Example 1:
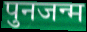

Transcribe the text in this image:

पुनजन्म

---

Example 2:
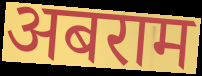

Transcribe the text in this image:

अबराम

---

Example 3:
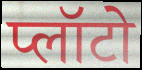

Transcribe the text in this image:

प्लॉटो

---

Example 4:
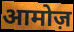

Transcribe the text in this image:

आमोज़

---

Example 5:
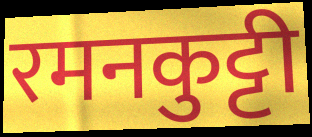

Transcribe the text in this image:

रमनकुट्टी